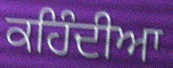
ਕਹਿੰਦੀਆ